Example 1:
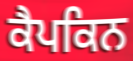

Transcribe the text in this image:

ਕੈਪਕਿਨ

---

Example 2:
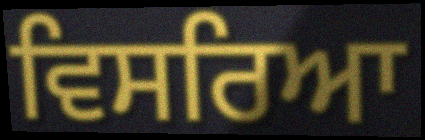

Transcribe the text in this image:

ਵਿਸਰਿਆ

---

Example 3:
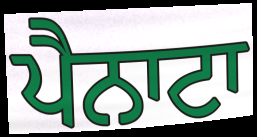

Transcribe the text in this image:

ਪੈਨਾਟਾ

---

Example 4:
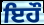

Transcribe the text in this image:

ਇਹੌ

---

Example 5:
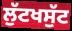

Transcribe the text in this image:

ਲੁੱਟਖਸੁੱਟ